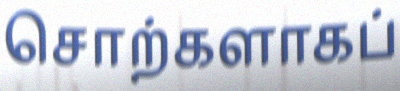
சொற்களாகப்